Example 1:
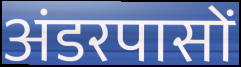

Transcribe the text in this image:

अंडरपासों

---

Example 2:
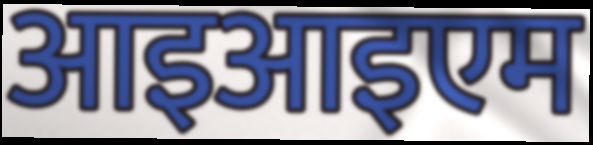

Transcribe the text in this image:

आइआइएम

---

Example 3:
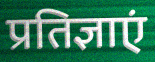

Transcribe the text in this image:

प्रतिज्ञाएं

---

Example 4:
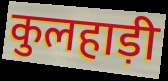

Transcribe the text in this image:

कुलहाड़ी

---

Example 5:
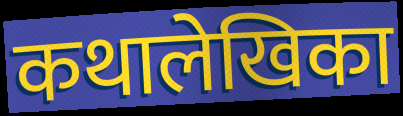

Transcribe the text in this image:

कथालेखिका